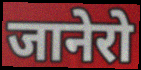
जानेरो